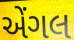
એંગલ